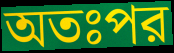
অতঃপর